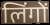
लिंगों